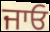
ਜਾਓ